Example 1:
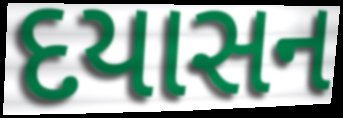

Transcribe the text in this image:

દયાસન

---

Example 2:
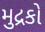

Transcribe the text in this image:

મુદ્રકો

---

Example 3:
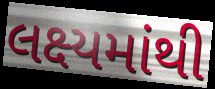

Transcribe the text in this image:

લક્ષ્યમાંથી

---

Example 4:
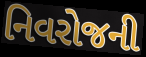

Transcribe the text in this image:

નિવરોજની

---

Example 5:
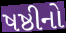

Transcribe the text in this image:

ષષ્ઠીનો